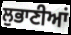
ਲੁਭਾਣੀਆਂ